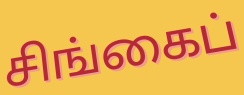
சிங்கைப்